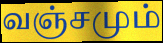
வஞ்சமும்